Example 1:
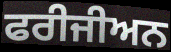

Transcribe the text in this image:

ਫਰੀਜੀਅਨ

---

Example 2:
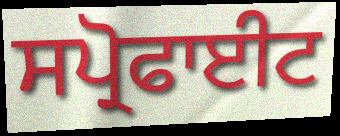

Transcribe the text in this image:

ਸਪ੍ਰੋਫਾਈਟ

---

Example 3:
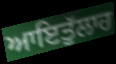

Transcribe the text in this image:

ਆਇਤੁੱਲਾਹ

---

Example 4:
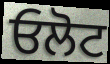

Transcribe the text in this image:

ਓਲੋਟ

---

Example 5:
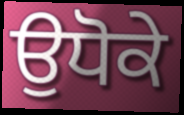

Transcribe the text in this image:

ਉਧੋਕੇ